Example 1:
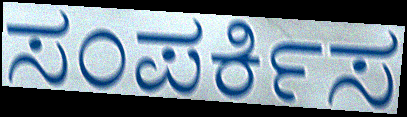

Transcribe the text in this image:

ಸಂಪರ್ಕಿಸ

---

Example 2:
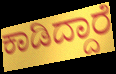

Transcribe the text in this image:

ಕಾಡಿದ್ದಾರೆ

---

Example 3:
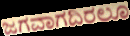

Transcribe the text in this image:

ಜಗವಾಗದಿರಲೂ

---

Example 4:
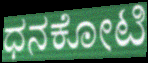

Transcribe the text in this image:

ಧನಕೋಟಿ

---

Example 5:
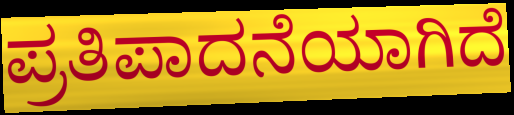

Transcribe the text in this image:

ಪ್ರತಿಪಾದನೆಯಾಗಿದೆ